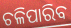
ଚଳିପାରିବ